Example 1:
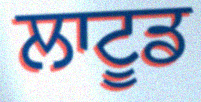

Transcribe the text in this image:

ਲਾਟੂਡ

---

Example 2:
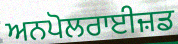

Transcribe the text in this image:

ਅਨਪੋਲਰਾਈਜ਼ਡ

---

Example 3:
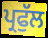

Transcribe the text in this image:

ਪ੍ਰਫੁੱਲ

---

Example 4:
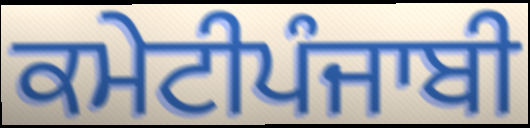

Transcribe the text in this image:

ਕਮੇਟੀਪੰਜਾਬੀ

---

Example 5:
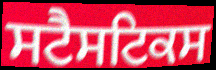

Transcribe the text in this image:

ਸਟੈਸਟਿਕਸ